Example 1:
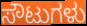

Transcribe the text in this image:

ಸೌಟುಗಳು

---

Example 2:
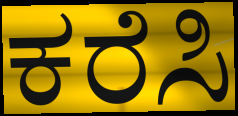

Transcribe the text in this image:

ಕರೆಸಿ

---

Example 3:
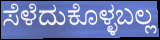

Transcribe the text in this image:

ಸೆಳೆದುಕೊಳ್ಳಬಲ್ಲ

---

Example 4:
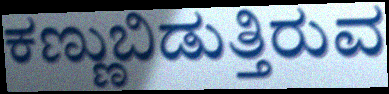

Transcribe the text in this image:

ಕಣ್ಣುಬಿಡುತ್ತಿರುವ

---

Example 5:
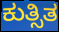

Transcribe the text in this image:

ಕುತ್ಸಿತ